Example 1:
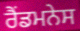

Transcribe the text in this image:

ਰੈਂਡਮਨੇਸ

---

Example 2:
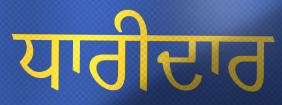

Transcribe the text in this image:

ਧਾਰੀਦਾਰ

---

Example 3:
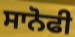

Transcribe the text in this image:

ਸਾਨੋਫੀ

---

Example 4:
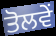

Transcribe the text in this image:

ਤੋਲਵੇਂ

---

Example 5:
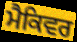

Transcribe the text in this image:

ਮੈਕਿਵਰ